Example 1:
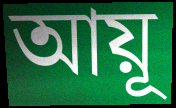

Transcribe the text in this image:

আয়ূ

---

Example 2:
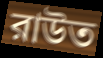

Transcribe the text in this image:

রাউত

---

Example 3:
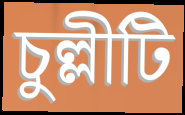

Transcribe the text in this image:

চুল্লীটি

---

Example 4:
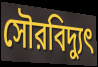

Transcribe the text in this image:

সৌরবিদ্যুৎ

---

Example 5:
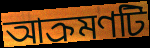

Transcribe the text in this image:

আক্রমণটি